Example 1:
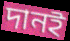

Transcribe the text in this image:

দানই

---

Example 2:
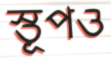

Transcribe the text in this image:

স্তূপও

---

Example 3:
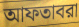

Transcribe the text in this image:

আফতাবরা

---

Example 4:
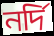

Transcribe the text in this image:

নর্দি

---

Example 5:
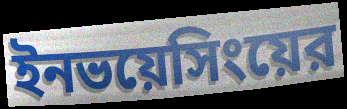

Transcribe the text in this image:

ইনভয়েসিংয়ের